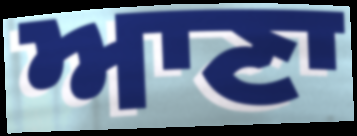
ਆਣਾ